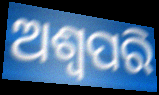
ଅଶ୍ୱପରି